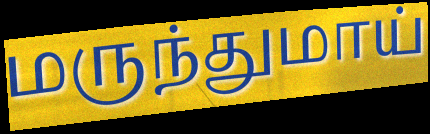
மருந்துமாய்